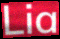
Lia